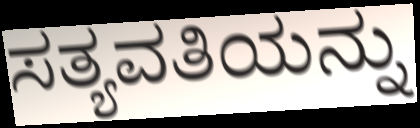
ಸತ್ಯವತಿಯನ್ನು